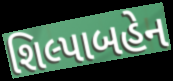
શિલ્પાબહેન